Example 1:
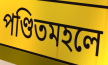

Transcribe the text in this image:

পণ্ডিতমহলে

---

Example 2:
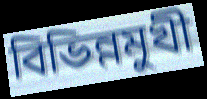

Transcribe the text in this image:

বিভিন্নমুখী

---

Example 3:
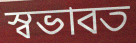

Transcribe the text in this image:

স্বভাবত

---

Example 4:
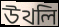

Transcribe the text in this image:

উথলি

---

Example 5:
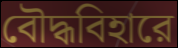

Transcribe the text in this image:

বৌদ্ধবিহারে